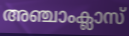
അഞ്ചാംക്ലാസ്